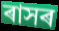
ৰাসৰ